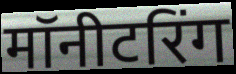
मॉनीटरिंग